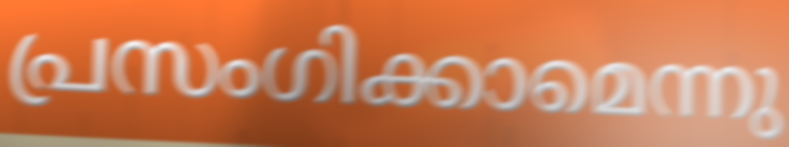
പ്രസംഗിക്കാമെന്നു